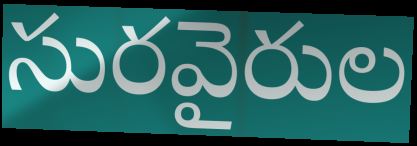
సురవైరుల